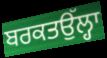
ਬਰਕਤਉੱਲ੍ਹਾ